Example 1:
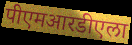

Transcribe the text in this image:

पीएमआरडीएला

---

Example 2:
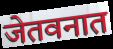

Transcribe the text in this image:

जेतवनात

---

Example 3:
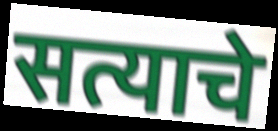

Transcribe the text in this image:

सत्याचे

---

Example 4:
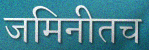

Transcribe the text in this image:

जमिनीतच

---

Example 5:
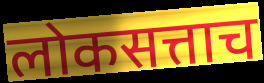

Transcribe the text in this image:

लोकसत्ताच